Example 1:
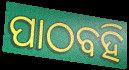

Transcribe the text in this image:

ପାଠବହି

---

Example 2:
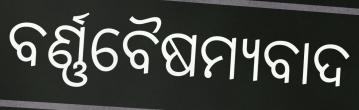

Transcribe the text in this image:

ବର୍ଣ୍ଣବୈଷମ୍ୟବାଦ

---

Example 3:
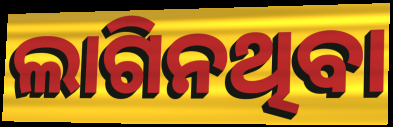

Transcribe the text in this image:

ଲାଗିନଥିବା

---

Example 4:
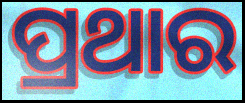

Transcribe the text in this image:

ପ୍ରଥାର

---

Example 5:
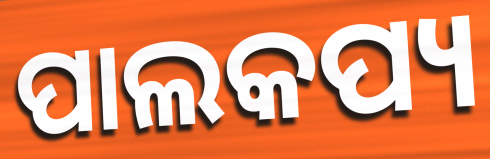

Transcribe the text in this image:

ପାଲକପ୍ୟ